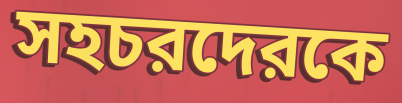
সহচরদেরকে